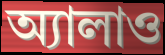
অ্যালাও